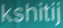
kshitij